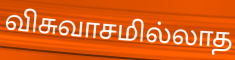
விசுவாசமில்லாத